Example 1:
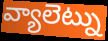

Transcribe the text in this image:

వ్యాలెట్ను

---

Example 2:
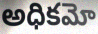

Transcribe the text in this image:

అధికమో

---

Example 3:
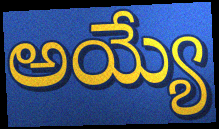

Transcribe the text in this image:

అయ్యే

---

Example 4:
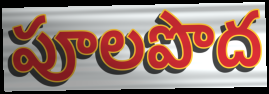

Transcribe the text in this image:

పూలపొద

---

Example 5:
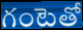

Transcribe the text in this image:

గంటెతో